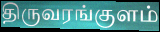
திருவரங்குளம்